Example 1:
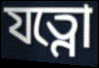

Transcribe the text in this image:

যত্নো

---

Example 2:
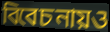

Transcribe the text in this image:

বিবেচনায়ও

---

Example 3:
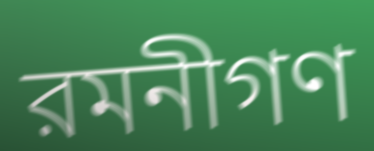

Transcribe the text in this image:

রমনীগণ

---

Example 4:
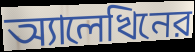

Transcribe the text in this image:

অ্যালেখিনের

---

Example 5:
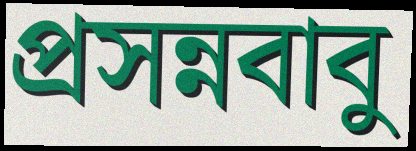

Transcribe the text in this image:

প্রসন্নবাবু